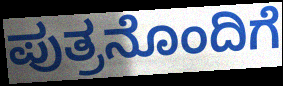
ಪುತ್ರನೊಂದಿಗೆ